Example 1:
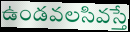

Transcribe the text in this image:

ఉండవలసివస్తే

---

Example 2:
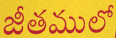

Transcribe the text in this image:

జీతములో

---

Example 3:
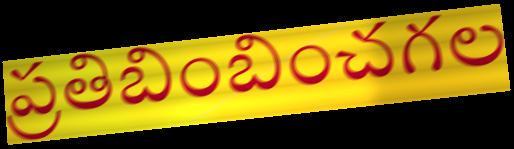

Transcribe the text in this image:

ప్రతిబింబించగల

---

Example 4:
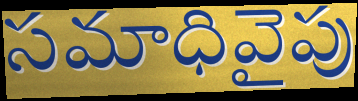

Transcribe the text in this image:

సమాధివైపు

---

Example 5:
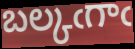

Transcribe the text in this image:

బల్కఁగాఁ